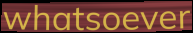
whatsoever